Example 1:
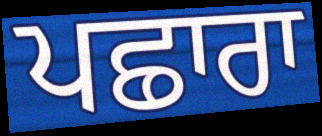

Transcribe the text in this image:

ਪਛਾਰਾ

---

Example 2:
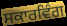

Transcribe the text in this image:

ਸਕਾਰਵਿੰਗ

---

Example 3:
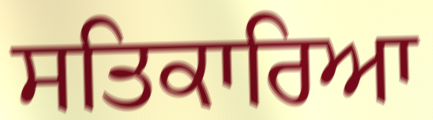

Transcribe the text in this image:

ਸਤਿਕਾਰਿਆ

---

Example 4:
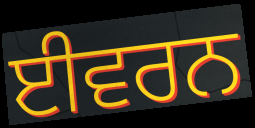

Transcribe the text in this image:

ਈਵਰਨ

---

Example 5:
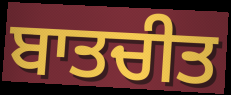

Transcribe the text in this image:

ਬਾਤਚੀਤ